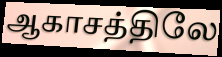
ஆகாசத்திலே